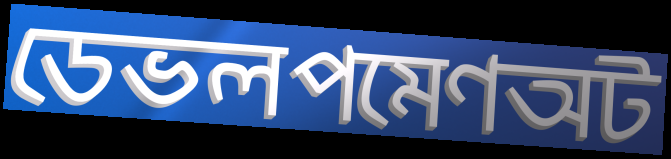
ডেভলপমেণঅট